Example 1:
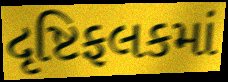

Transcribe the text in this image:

દૃષ્ટિફલકમાં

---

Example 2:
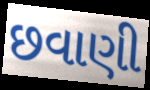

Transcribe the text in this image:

છવાણી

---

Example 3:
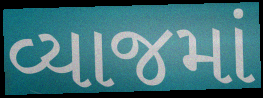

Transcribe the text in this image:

વ્યાજમાં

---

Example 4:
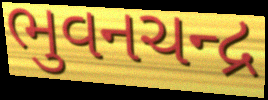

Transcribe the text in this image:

ભુવનચન્દ્ર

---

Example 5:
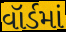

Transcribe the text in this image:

વૉર્ડમાં